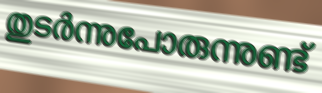
തുടർന്നുപോരുന്നുണ്ട്